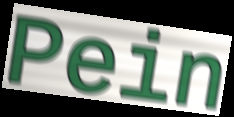
Pein